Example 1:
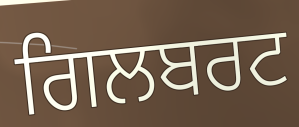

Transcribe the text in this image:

ਗਿਲਬਰਟ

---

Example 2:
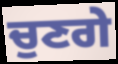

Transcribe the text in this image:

ਚੁਣਗੇ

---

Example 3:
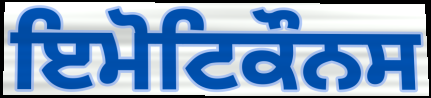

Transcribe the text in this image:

ਇਮੋਟਿਕੌਨਸ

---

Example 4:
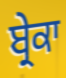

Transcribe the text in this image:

ਬ੍ਰੇਕਾ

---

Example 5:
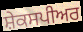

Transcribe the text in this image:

ਸ਼ੇਕਸਪੀਅਰ